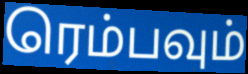
ரெம்பவும்